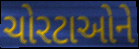
ચોરટાઓને